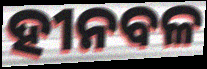
ହୀନବଳ